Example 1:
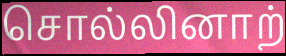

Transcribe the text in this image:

சொல்லினாற்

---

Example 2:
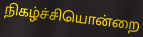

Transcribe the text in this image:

நிகழ்ச்சியொன்றை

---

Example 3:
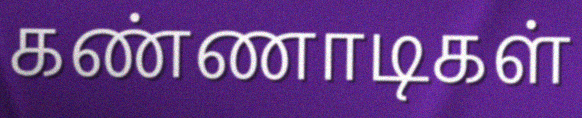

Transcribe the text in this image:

கண்ணாடிகள்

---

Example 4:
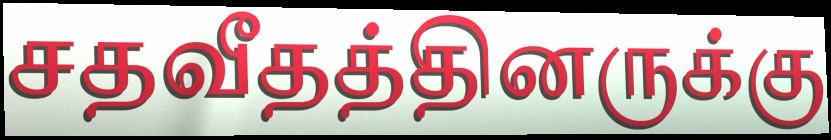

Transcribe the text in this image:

சதவீதத்தினருக்கு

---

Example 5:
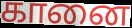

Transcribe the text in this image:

கானை